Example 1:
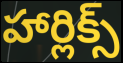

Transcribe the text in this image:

హార్లిక్స్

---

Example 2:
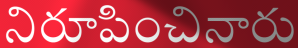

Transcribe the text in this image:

నిరూపించినారు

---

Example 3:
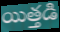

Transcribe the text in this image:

యిత్తడి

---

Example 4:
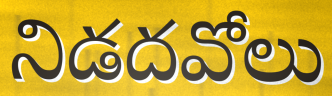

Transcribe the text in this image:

నిడదవోలు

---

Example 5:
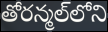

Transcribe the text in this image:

తోరన్మల్‌లోని